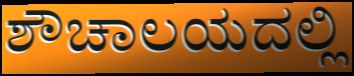
ಶೌಚಾಲಯದಲ್ಲಿ